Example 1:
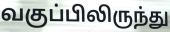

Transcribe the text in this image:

வகுப்பிலிருந்து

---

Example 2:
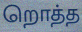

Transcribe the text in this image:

றொத்த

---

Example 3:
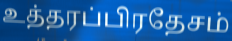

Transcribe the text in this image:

உத்தரப்பிரதேசம்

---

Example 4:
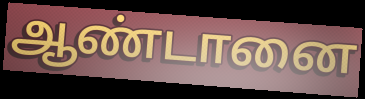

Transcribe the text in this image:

ஆண்டானை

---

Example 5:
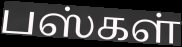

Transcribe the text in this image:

பஸ்கள்